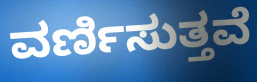
ವರ್ಣಿಸುತ್ತವೆ